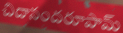
చిదానందరూపామ్